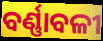
ବର୍ଣ୍ଣାବଳୀ